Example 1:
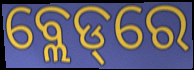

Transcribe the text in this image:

ବ୍ଲେଡ୍‌ରେ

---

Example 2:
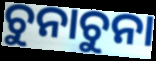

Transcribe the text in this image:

ଚୁନାଚୁନା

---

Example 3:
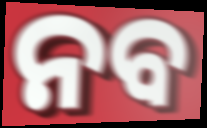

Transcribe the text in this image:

ନବ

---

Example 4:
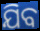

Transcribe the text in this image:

ଯିବ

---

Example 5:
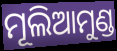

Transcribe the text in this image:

ମୂଲିଆମୁଣ୍ଡ